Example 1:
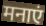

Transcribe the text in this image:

मनाएं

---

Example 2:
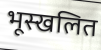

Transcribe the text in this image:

भूस्खलित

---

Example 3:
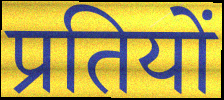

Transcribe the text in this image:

प्रतियों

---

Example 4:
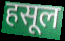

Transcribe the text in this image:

हसूल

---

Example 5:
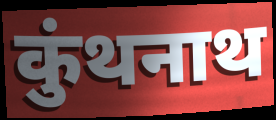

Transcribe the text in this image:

कुंथनाथ